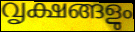
വൃക്ഷങ്ങളും